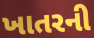
ખાતરની